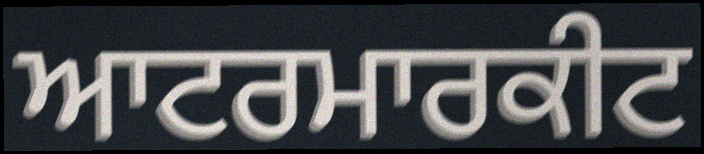
ਆਟਰਮਾਰਕੀਟ